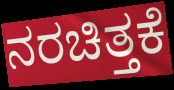
ನರಚಿತ್ತಕೆ